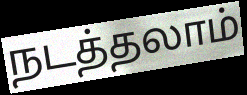
நடத்தலாம்